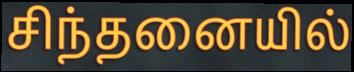
சிந்தனையில்